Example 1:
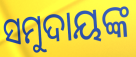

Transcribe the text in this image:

ସମୁଦାୟଙ୍କ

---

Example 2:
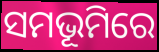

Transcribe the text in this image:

ସମଭୂମିରେ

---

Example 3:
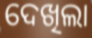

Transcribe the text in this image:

ଦେଖିଲା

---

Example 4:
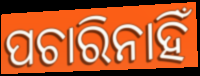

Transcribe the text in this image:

ପଚାରିନାହିଁ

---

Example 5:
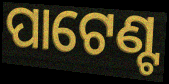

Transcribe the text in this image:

ପାଟେଣ୍ଟ